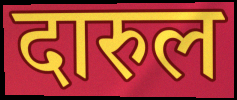
दारुल